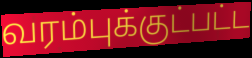
வரம்புக்குட்பட்ட